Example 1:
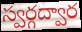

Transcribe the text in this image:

స్వర్గద్వార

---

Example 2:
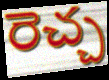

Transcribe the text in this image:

రెచ్చ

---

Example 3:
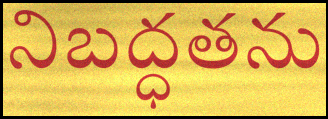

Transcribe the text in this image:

నిబద్ధతను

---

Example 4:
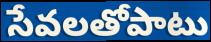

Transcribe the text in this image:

సేవలతోపాటు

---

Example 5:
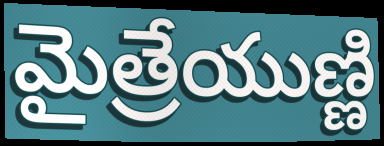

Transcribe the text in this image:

మైత్రేయుణ్ణి